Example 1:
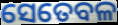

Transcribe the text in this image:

ସେତେବଳ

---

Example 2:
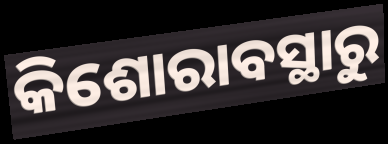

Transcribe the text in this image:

କିଶୋରାବସ୍ଥାରୁ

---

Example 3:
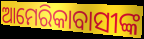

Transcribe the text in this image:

ଆମେରିକାବାସୀଙ୍କ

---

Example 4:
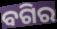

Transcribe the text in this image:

ବଗିର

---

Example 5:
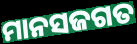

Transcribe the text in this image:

ମାନସଜଗତ